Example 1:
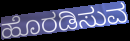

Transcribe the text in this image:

ಹೊರಡಿಸುವ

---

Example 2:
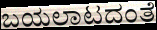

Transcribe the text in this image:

ಬಯಲಾಟದಂತೆ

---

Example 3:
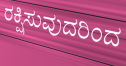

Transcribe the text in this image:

ರಕ್ಷಿಸುವುದರಿಂದ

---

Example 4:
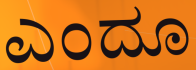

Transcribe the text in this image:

ಎಂದೂ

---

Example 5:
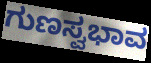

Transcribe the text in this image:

ಗುಣಸ್ವಭಾವ